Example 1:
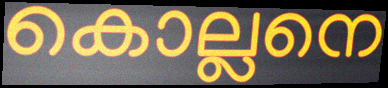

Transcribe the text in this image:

കൊല്ലനെ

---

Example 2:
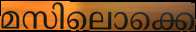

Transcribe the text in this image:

മസിലൊക്കെ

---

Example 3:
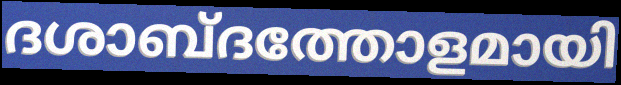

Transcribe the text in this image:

ദശാബ്ദത്തോളമായി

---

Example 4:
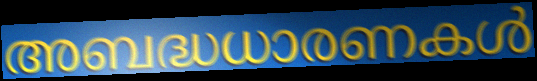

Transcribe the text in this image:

അബദ്ധധാരണകൾ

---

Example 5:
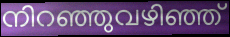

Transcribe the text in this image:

നിറഞ്ഞുവഴിഞ്ഞ്